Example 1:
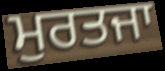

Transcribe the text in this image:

ਮੁਰਤਜਾ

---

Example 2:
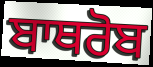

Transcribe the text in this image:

ਬਾਥਰੋਬ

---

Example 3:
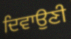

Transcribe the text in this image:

ਦਿਵਾਉਣੀ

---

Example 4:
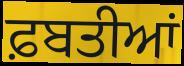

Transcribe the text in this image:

ਫ਼ਬਤੀਆਂ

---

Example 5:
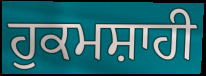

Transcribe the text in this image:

ਹੁਕਮਸ਼ਾਹੀ